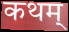
कथम्